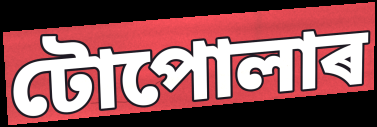
টোপোলাৰ